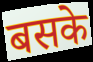
बसके